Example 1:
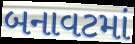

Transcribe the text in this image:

બનાવટમાં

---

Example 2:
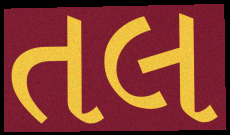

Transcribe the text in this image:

તલ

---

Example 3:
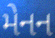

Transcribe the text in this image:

મેનન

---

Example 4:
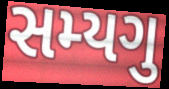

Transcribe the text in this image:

સમ્યગુ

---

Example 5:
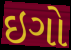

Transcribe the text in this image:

ઇગો